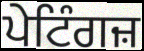
ਪੇਟਿੰਗਜ਼